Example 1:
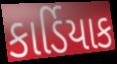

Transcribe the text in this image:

કાર્ડિયાક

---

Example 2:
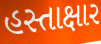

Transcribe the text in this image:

હસ્તાક્ષાર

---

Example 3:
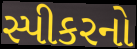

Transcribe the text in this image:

સ્પીકરનો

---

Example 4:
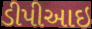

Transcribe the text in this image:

ડીપીઆઇ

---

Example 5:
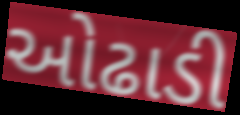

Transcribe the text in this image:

ઓઢાડી